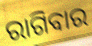
ରାଗିବାର